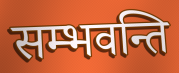
सम्भवन्ति